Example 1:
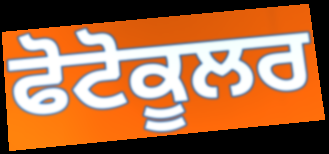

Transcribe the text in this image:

ਫੋਟੋਕੂਲਰ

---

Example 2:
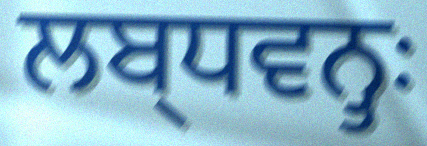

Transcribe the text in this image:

ਲਬ੍ਧਵਨ੍ਤਃ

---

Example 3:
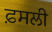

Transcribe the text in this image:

ਫ਼ਸਲੀ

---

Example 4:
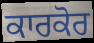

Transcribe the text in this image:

ਕਾਰਕੋਰ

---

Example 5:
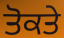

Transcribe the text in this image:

ਤੋਕਤੇ